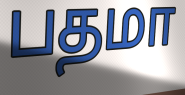
பதமா